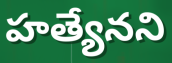
హత్యేనని